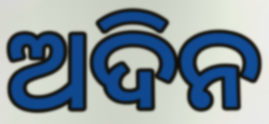
ଅଦିନ